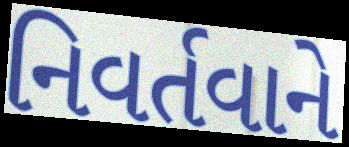
નિવર્તવાને